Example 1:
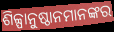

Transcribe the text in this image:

ଶିଳ୍ପାନୁଷ୍ଠାନମାନଙ୍କର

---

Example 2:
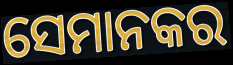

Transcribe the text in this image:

ସେମାନକର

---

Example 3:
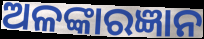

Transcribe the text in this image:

ଅଳଙ୍କାରଜ୍ଞାନ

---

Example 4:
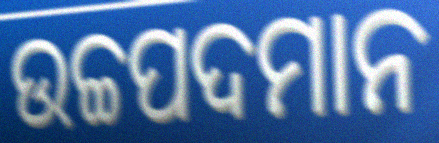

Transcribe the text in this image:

ଉଚ୍ଚପଦମାନ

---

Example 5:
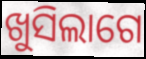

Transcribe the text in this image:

ଖୁସିଲାଗେ